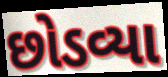
છોડવ્યા